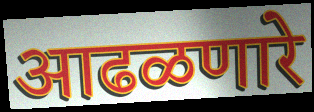
आढळणारे